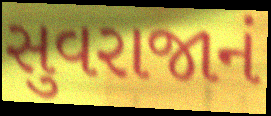
સુવરાજાનં